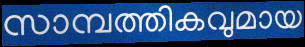
സാമ്പത്തികവുമായ